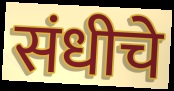
संधीचे